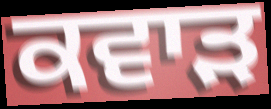
ਕਵਾੜ